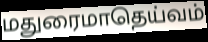
மதுரைமாதெய்வம்